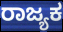
ರಾಜ್ಯಕ